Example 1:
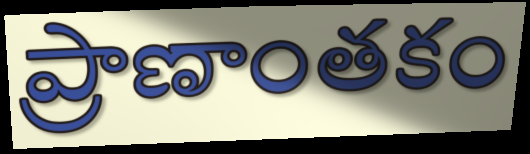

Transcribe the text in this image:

ప్రాణాంతకం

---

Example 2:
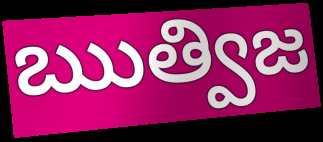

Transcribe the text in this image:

ఋత్విజ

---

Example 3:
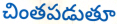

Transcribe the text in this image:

చింతపడుతూ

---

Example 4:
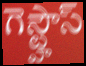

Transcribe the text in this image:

గెస్ట్హౌస్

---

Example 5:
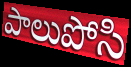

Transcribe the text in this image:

పాలుపోసి